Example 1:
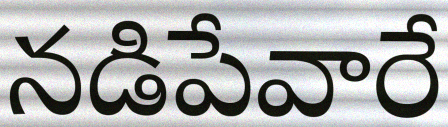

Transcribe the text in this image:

నడిపేవారే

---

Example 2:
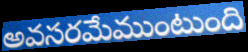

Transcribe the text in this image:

అవసరమేముంటుంది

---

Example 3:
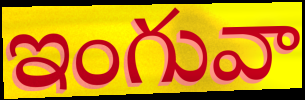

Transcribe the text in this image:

ఇంగువా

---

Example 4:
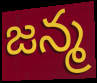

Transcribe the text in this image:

జన్మ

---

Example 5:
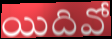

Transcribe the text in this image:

యిదివో